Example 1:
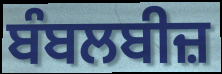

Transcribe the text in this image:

ਬੰਬਲਬੀਜ਼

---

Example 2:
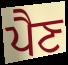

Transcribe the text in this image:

ਪੈਣ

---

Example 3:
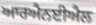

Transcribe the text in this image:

ਆਰਐਨਈਐਲ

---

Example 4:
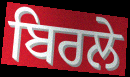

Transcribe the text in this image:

ਬਿਰਲੇ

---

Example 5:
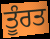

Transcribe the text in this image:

ਤੂੰਰਤ